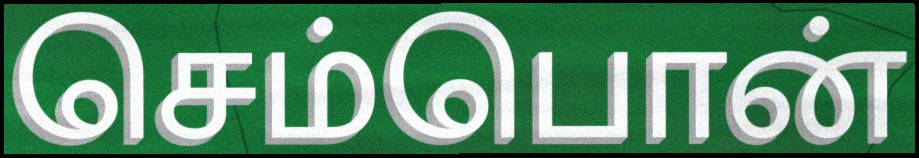
செம்பொன்